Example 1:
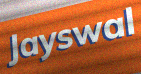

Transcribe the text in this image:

Jayswal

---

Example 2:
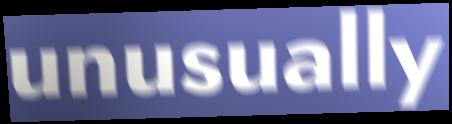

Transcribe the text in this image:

unusually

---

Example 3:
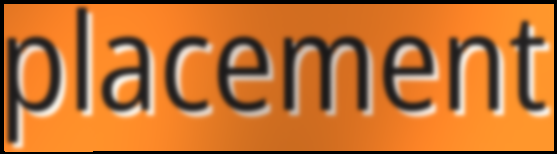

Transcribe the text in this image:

placement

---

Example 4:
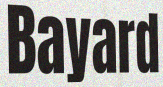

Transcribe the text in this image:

Bayard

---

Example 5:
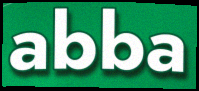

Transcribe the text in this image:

abba